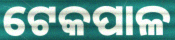
ଟେକପାଳ